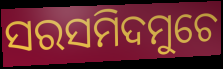
ସରସମିଦମୁଚେ